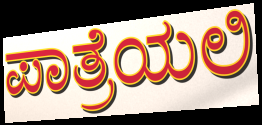
ಪಾತ್ರೆಯಲಿ